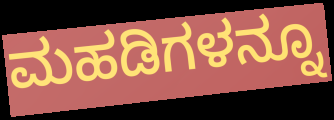
ಮಹಡಿಗಳನ್ನೂ